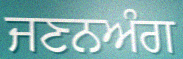
ਜਣਨਅੰਗ